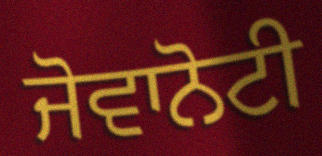
ਜੋਵਾਨੋਟੀ